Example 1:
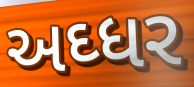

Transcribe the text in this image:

અઘ્ધર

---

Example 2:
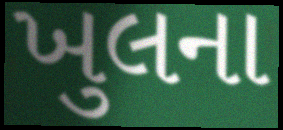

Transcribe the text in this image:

ખુલના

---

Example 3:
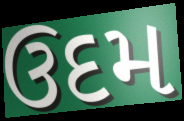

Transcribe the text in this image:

ઉદમ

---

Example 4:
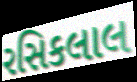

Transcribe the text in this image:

રસિકલાલ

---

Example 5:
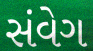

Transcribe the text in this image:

સંવેગ